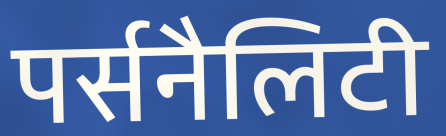
पर्सनैलिटी